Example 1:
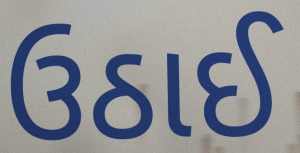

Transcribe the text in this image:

ઉઠાઈ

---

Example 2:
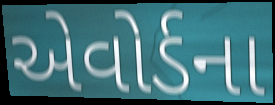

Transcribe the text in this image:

એવોર્ડના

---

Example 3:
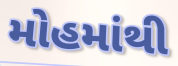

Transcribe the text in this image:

મોહમાંથી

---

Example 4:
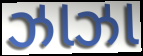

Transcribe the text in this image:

ઝાઝા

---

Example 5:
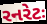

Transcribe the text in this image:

રનરેટઃ